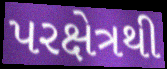
પરક્ષેત્રથી